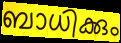
ബാധിക്കും